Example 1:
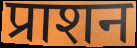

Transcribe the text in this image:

प्राशन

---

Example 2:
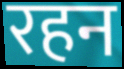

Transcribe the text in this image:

रहन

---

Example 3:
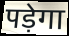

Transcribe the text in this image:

पड़ेगा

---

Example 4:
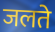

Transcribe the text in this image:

जलते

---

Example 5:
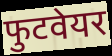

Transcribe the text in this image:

फुटवेयर